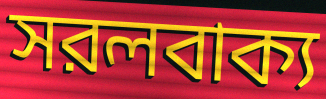
সরলবাক্য